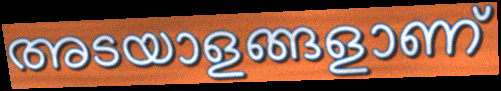
അടയാളങ്ങളാണ്